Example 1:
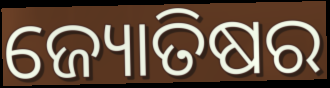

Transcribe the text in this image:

ଜ୍ୟୋତିଷର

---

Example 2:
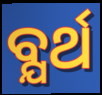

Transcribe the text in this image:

ବ୍ଯର୍ଥ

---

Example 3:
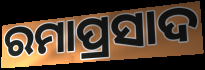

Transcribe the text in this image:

ରମାପ୍ରସାଦ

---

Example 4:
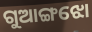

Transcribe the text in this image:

ଗୁଆଙ୍ଗଝୋ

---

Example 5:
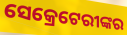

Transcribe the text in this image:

ସେକ୍ରେଟେରୀଙ୍କର